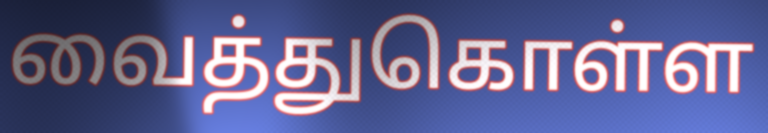
வைத்துகொள்ள